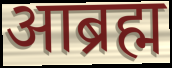
आब्रह्म